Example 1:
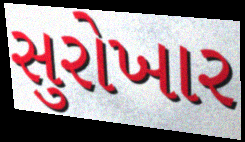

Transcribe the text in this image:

સુરોખાર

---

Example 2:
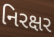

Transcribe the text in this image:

નિરક્ષર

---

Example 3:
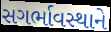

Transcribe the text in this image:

સગર્ભાવસ્થાને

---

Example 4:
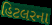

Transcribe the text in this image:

હિટલરના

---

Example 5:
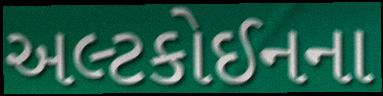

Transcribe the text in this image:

અલ્ટકોઈનના